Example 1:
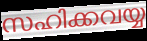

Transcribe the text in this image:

സഹിക്കവയ്യ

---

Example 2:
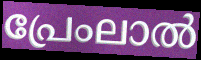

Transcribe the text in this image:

പ്രേംലാൽ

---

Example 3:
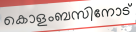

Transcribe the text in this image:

കൊളംബസിനോട്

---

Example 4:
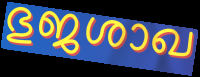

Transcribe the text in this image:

ഭുജശാഖ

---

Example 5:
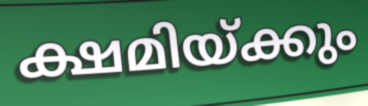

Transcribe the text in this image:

ക്ഷമിയ്ക്കും